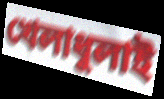
খেলাধুলাই